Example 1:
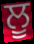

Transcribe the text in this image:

ਲੂ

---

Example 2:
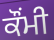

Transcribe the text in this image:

ਕੌਂਮੀ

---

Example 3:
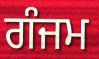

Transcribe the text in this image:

ਗੰਜਮ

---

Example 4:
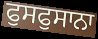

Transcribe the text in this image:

ਫੁਸਫੁਸਾਨਾ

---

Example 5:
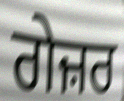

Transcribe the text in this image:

ਗੇਜ਼ਰ